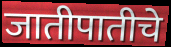
जातीपातीचे